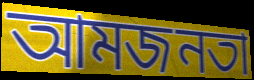
আমজনতা